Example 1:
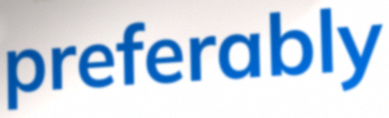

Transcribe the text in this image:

preferably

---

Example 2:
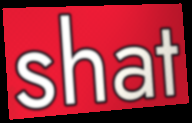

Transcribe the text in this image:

shat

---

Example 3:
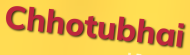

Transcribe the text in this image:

Chhotubhai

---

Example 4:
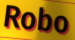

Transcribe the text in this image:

Robo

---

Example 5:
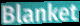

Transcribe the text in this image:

Blanket